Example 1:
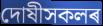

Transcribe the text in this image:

দোষীসকলৰ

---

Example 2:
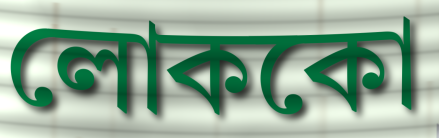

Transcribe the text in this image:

লোককো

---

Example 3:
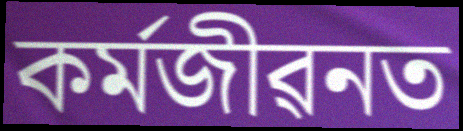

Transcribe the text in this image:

কৰ্মজীৱনত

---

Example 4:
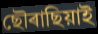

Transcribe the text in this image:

ছৌৰাছিয়াই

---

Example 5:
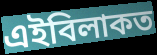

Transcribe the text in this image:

এইবিলাকত